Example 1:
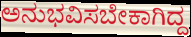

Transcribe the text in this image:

ಅನುಭವಿಸಬೇಕಾಗಿದ್ದ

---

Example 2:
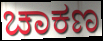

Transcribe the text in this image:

ಚಾಕಣ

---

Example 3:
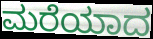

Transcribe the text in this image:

ಮರೆಯಾದ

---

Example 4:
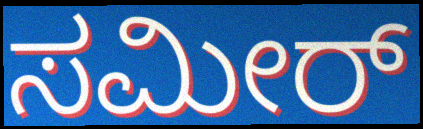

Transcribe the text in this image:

ಸಮೀರ್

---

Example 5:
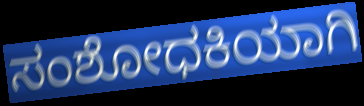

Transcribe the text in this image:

ಸಂಶೋಧಕಿಯಾಗಿ